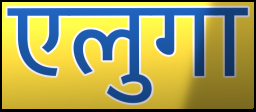
एलुगा